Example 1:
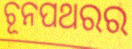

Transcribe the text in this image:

ଚୂନପଥରର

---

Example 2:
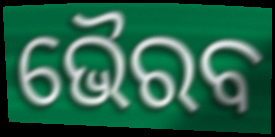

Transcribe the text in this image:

ଭୈରବ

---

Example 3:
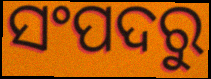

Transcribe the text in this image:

ସଂପଦରୁ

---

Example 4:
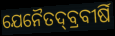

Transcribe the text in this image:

ଯେନୈତଦ୍‌ବ୍ରବୀର୍ଷି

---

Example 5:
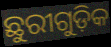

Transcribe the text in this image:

ଛୁରୀଗୁଡ଼ିକ